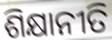
ଶିକ୍ଷାନୀତି